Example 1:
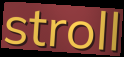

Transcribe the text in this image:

stroll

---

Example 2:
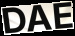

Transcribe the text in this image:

DAE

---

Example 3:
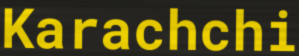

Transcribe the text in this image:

Karachchi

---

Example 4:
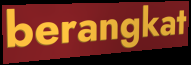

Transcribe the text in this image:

berangkat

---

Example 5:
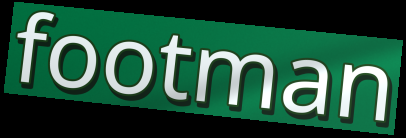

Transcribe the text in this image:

footman